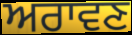
ਅਰਾਵਣ